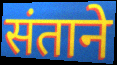
संताने